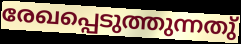
രേഖപ്പെടുത്തുന്നതു്